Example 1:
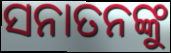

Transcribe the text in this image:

ସନାତନଙ୍କୁ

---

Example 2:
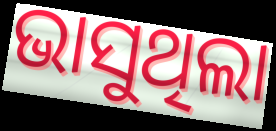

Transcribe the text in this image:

ଭାସୁଥିଲା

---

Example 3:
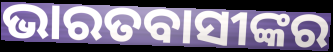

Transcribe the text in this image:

ଭାରତବାସୀଙ୍କର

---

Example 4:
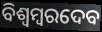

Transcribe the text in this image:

ବିଶ୍ୱମ୍ବରଦେବ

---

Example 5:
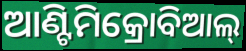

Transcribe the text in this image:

ଆଣ୍ଟିମିକ୍ରୋବିଆଲ୍